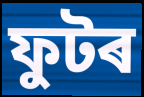
ফুটৰ